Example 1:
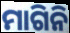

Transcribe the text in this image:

ମାଗିନି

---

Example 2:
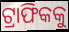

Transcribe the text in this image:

ଟ୍ରାଫିକକୁ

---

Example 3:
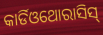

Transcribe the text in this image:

କାର୍ଡିଓଥୋରାସିସ୍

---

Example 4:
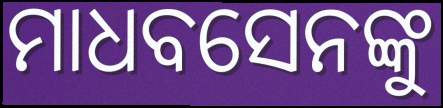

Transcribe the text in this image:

ମାଧବସେନଙ୍କୁ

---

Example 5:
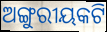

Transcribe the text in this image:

ଅଙ୍ଗୁରୀୟକଟି